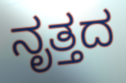
ನೃತ್ತದ